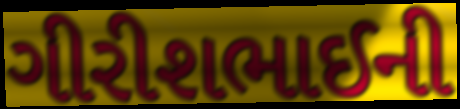
ગીરીશભાઈની